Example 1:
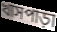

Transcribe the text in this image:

খাসপাড়া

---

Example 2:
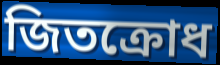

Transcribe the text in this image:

জিতক্রোধ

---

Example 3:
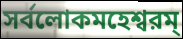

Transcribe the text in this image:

সর্বলোকমহেশ্বরম্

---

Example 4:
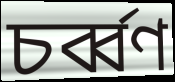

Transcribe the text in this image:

চর্ব্বণ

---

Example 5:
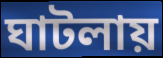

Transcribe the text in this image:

ঘাটলায়